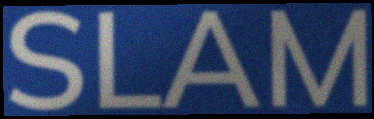
SLAM